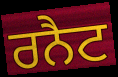
ਰਨੈਟ